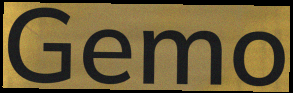
Gemo